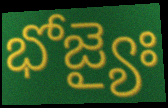
భోజ్యైః